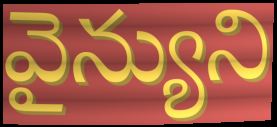
వైన్యుని